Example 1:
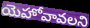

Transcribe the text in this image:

యెహోవావలని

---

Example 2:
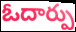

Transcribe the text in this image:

ఓదార్పు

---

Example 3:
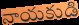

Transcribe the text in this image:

నాయకుడి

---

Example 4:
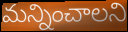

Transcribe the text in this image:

మన్నించాలని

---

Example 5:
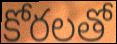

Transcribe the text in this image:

కోరలతో